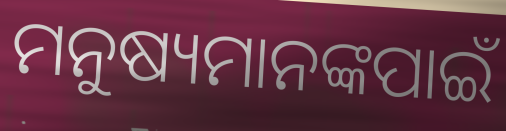
ମନୁଷ୍ୟମାନଙ୍କପାଇଁ